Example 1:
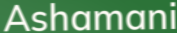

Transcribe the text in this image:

Ashamani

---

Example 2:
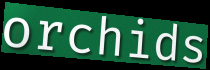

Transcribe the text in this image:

orchids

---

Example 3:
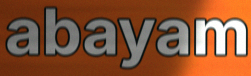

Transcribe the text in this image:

abayam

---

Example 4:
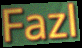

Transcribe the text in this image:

Fazl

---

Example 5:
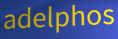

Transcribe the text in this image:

adelphos